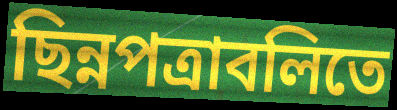
ছিন্নপত্রাবলিতে